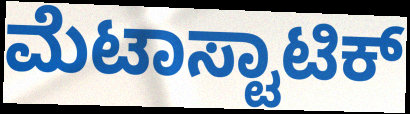
ಮೆಟಾಸ್ಟಾಟಿಕ್